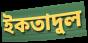
ইকতাদুল